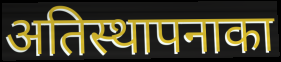
अतिस्थापनाका